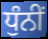
ਧੁੰਨੀਂ